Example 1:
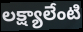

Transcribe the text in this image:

లక్ష్యాలేంటి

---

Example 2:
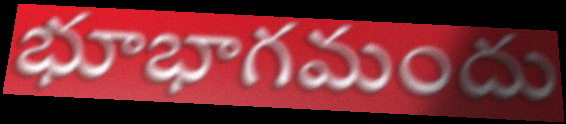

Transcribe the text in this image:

భూభాగమందు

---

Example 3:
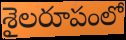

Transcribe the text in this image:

శైలరూపంలో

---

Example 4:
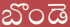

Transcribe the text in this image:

బొండె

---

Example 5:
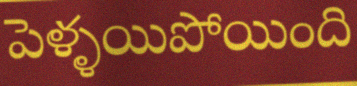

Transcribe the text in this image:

పెళ్ళయిపోయింది